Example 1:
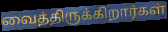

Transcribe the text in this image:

வைத்திருக்கிறார்கள்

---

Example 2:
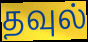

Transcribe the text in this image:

தவுல்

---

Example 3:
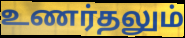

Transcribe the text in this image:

உணர்தலும்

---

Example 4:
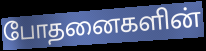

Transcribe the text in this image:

போதனைகளின்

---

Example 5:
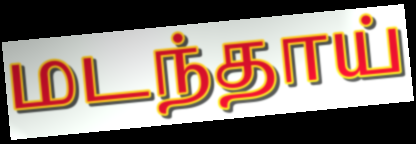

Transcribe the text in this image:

மடந்தாய்